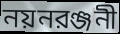
নয়নরঞ্জনী